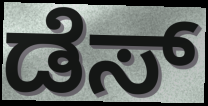
ಡೆಸ್